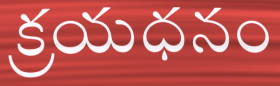
క్రయధనం